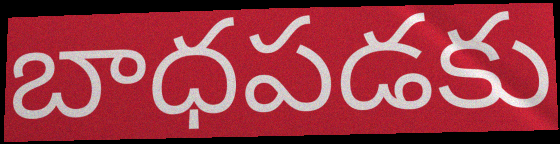
బాధపడకు